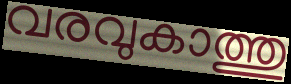
വരവുകാത്തു